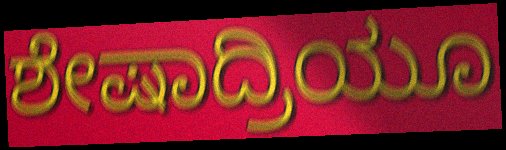
ಶೇಷಾದ್ರಿಯೂ